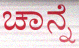
ಚಾನ್ನೆ